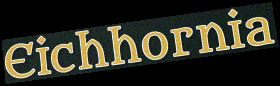
Eichhornia